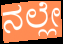
ನಲ್ಲೇ